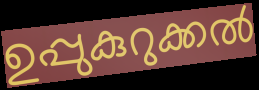
ഉപ്പുകുറുക്കൽ